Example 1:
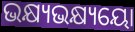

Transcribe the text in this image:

ଭକ୍ଷ୍ୟଭକ୍ଷ୍ୟୟୋ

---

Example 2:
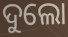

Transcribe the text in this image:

ଦୁଲୋ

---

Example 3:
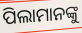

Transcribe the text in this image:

ପିଲାମାନଙ୍କୁ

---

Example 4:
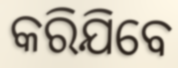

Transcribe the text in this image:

କରିଯିବେ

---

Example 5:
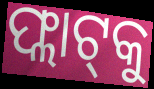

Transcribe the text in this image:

ଫ୍ଲାଟ୍‌କୁ